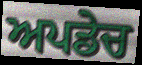
ਅਪਡੇਚ